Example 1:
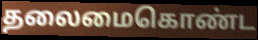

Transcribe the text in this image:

தலைமைகொண்ட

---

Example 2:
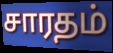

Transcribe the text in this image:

சாரதம்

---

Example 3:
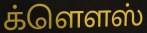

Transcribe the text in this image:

க்ளௌஸ்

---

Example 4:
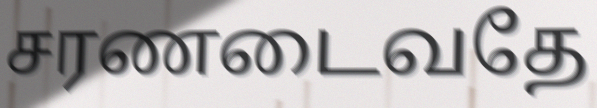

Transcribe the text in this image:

சரணடைவதே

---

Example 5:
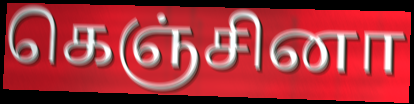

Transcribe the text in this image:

கெஞ்சினா